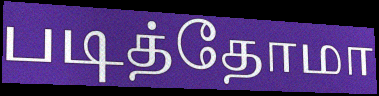
படித்தோமா